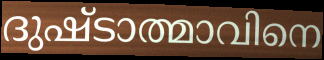
ദുഷ്ടാത്മാവിനെ